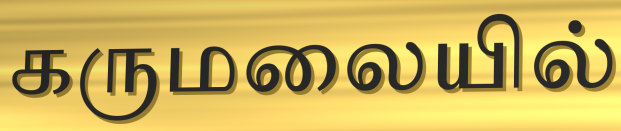
கருமலையில்